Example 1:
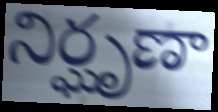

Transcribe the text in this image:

నిర్ఘృణా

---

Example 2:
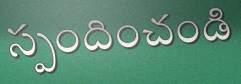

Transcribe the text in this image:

స్పందించండి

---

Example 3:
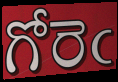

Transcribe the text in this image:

గోరెఁ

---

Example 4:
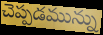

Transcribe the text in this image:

చెప్పడమున్ను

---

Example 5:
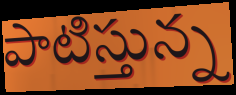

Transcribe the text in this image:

పాటిస్తున్న